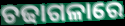
ଚଢାଗଳାରେ